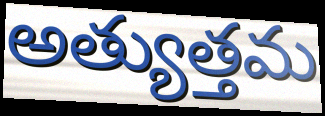
అత్యుత్తమ